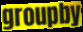
groupby